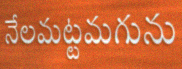
నేలమట్టమగును